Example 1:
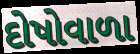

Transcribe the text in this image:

દોષોવાળા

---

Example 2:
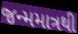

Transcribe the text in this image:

જન્મમાત્રથી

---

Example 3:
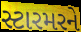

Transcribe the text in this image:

સ્ટારમરને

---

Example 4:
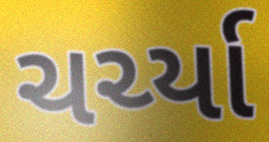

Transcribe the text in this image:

ચર્ચ્યા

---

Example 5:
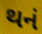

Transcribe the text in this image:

થનં